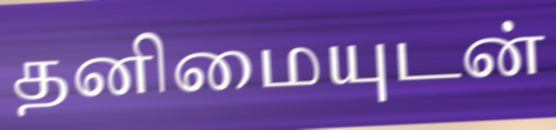
தனிமையுடன்